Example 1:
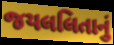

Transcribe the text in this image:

જયલલિતાનું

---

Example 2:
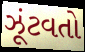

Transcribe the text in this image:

ઝૂંટવતો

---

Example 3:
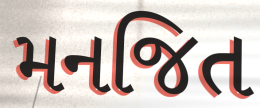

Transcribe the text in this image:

મનજિત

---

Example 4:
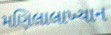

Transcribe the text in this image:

મણિલાલાખ્યાન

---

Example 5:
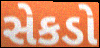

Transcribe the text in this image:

સેકડો